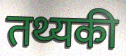
तथ्यकी